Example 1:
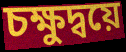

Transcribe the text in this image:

চক্ষুদ্বয়ে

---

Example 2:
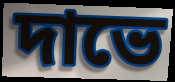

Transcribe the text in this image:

দাভে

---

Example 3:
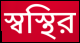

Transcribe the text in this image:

স্বস্থির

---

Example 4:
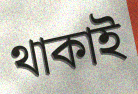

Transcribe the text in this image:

থাকাই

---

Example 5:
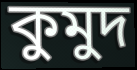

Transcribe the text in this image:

কুমুদ